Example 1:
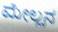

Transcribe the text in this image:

ಮೇಲ್ಲನ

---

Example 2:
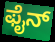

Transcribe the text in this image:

ಫೈನ್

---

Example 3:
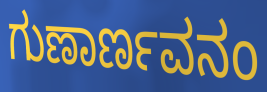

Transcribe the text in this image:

ಗುಣಾರ್ಣವನಂ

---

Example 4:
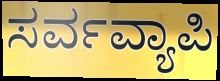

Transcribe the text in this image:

ಸರ್ವವ್ಯಾಪಿ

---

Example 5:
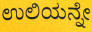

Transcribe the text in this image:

ಉಲಿಯನ್ನೇ